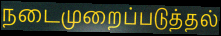
நடைமுறைப்படுத்தல்